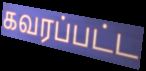
கவரப்பட்ட